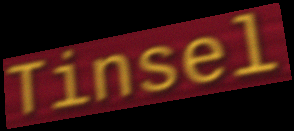
Tinsel